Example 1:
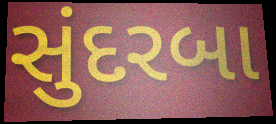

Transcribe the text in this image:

સુંદરબા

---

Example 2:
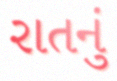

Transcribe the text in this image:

રાતનું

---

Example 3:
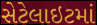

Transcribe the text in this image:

સેટેલાઇટમાં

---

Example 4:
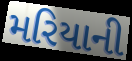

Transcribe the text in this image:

મરિયાની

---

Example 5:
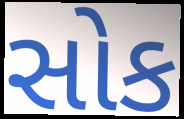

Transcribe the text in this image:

સોક